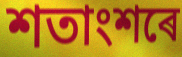
শতাংশৰে